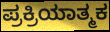
ಪ್ರಕ್ರಿಯಾತ್ಮಕ